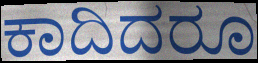
ಕಾದಿದರೂ